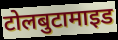
टोलबुटामाइड